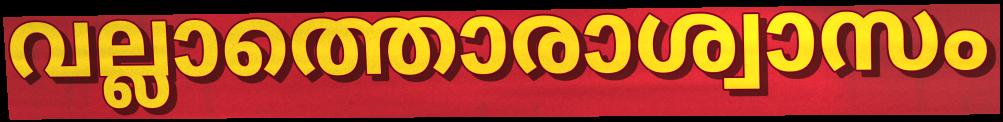
വല്ലാത്തൊരാശ്വാസം